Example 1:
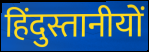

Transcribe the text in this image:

हिंदुस्तानीयों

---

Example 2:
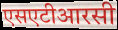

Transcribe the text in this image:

एसएटीआरसी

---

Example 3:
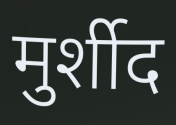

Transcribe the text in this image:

मुर्शीद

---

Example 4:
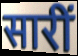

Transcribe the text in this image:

सारीं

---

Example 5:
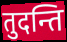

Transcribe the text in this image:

तुदन्ति